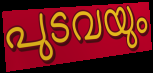
പുടവയും